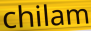
chilam